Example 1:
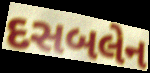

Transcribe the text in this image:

દસબલેન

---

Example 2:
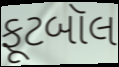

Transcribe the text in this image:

ફૂટબૉલ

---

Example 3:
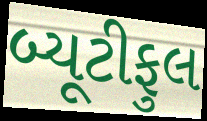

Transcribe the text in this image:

બ્યૂટીફુલ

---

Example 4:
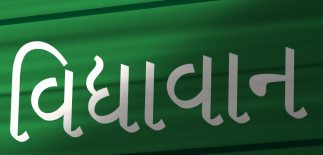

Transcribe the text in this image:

વિદ્યાવાન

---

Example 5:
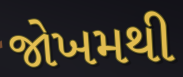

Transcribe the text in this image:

જોખમથી